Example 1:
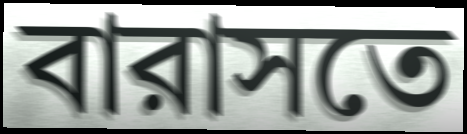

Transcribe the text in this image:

বারাসতে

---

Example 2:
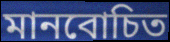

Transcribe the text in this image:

মানবোচিত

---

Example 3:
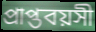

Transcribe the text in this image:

প্রাপ্তবয়সী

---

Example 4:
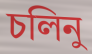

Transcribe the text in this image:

চলিনু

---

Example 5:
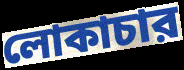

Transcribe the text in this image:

লোকাচার